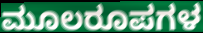
ಮೂಲರೂಪಗಳ